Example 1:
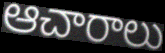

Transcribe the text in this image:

ఆచారాలు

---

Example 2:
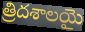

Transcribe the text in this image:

త్రిదశాలయై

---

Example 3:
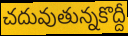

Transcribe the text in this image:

చదువుతున్నకొద్దీ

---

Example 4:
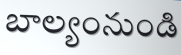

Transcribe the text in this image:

బాల్యంనుండి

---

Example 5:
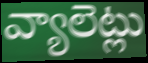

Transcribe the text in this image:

వ్యాలెట్లు